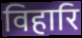
विहारि